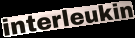
interleukin